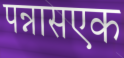
पन्नासएक